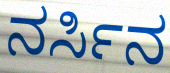
ನರ್ಸಿನ